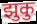
झुकु